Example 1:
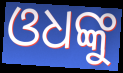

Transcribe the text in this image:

ଓଧଙ୍କୁ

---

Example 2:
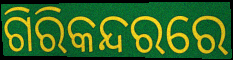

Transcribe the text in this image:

ଗିରିକନ୍ଦରରେ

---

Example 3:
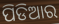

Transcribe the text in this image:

ପିଡିଆର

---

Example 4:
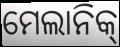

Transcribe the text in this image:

ମେଲାନିକ୍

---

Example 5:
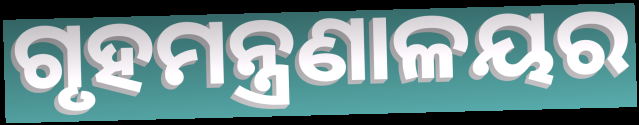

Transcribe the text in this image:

ଗୃହମନ୍ତ୍ରଣାଳୟର